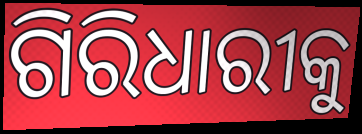
ଗିରିଧାରୀକୁ